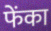
फेंका